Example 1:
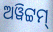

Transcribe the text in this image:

ଅୱିଟ୍ଟମ୍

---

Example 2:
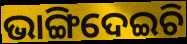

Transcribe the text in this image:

ଭାଙ୍ଗିଦେଇଚି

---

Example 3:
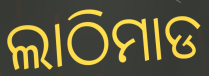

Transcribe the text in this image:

ଲାଠିମାଡ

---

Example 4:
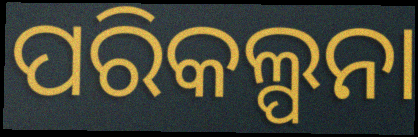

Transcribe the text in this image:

ପରିକଲ୍ପନା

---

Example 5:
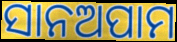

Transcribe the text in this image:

ସାନଅପାମ